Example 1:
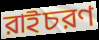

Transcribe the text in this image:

রাইচরণ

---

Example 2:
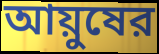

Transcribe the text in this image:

আয়ুষের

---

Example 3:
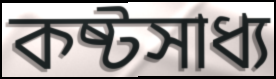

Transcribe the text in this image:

কষ্টসাধ্য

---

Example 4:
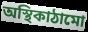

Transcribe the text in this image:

অস্থিকাঠামো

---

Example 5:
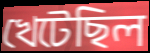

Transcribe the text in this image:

খেটেছিল